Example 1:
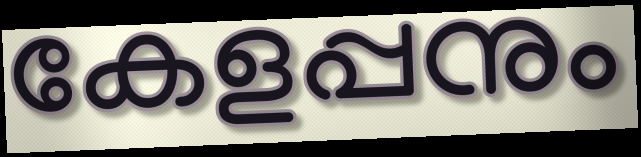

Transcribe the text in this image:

കേളപ്പനും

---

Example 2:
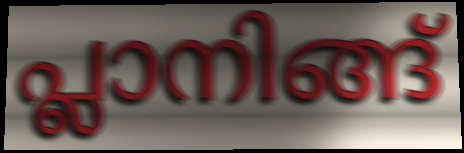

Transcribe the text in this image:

പ്ലാനിങ്ങ്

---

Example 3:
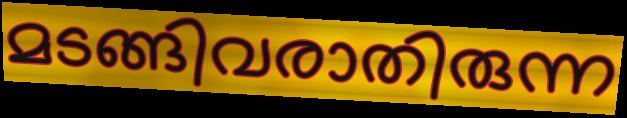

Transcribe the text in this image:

മടങ്ങിവരാതിരുന്ന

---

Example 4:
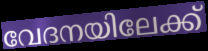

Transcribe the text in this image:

വേദനയിലേക്ക്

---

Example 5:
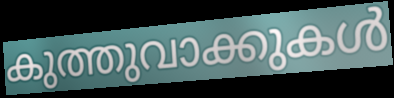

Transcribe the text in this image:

കുത്തുവാക്കുകൾ